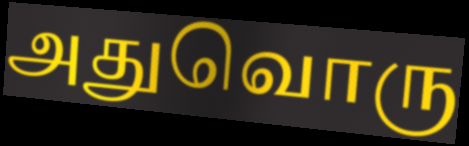
அதுவொரு